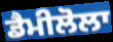
ਡੈਮੀਲੋਲਾ